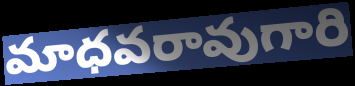
మాధవరావుగారి